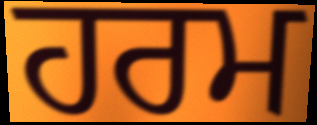
ਹਰਮ